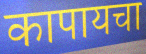
कापायचा